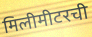
मिलीमीटरची